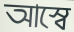
আস্বে